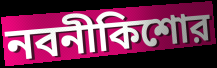
নবনীকিশোর